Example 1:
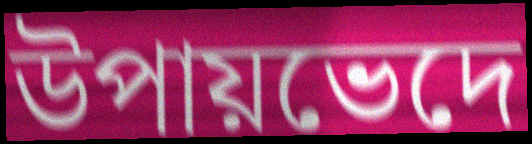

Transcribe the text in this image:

উপায়ভেদে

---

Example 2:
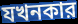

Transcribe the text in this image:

যখনকার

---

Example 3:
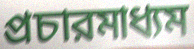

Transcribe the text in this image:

প্রচারমাধ্যম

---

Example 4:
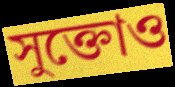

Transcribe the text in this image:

সুক্তোও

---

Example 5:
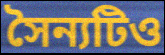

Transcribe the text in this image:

সৈন্যটিও